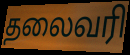
தலைவரி